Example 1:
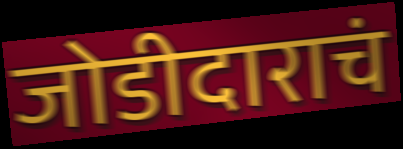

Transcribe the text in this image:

जोडीदाराचं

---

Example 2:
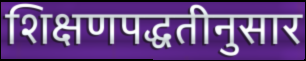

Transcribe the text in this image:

शिक्षणपद्धतीनुसार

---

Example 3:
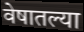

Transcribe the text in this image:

वेषातल्या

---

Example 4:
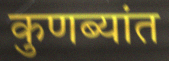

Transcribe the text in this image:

कुणब्यांत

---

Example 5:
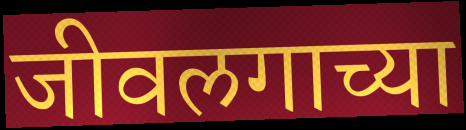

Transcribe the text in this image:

जीवलगाच्या